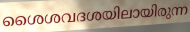
ശൈശവദശയിലായിരുന്ന